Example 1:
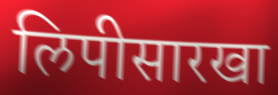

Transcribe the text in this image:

लिपीसारखा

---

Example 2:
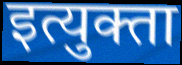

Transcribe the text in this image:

इत्युक्ता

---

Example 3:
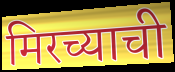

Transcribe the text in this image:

मिरच्याची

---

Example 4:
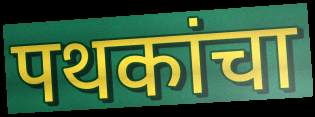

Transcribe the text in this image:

पथकांचा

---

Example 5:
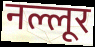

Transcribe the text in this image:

नल्लूर